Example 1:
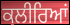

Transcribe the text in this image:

ਕਲੀਰਿਆਂ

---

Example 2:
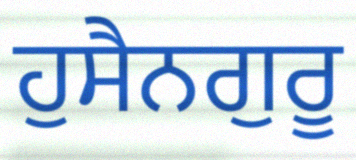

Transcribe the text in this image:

ਹੁਸੈਨਗੁਰੂ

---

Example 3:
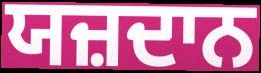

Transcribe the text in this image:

ਯਜ਼ਦਾਨ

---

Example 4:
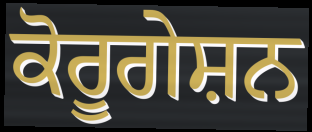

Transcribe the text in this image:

ਕੋਰੂਗੇਸ਼ਨ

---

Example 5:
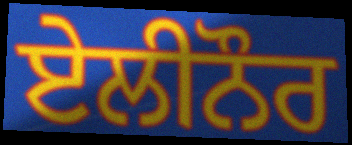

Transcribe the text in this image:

ਏਲੀਨੌਰ